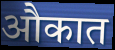
औकात